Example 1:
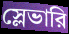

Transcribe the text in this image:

স্লেভারি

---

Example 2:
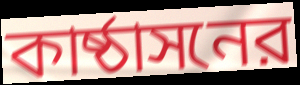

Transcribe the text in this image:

কাষ্ঠাসনের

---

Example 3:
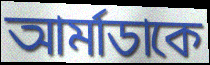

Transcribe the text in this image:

আর্মাডাকে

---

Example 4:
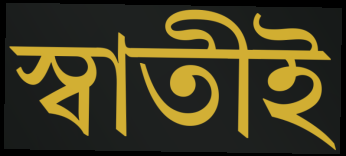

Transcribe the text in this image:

স্বাতীই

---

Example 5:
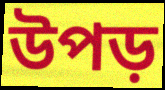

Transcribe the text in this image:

উপড়